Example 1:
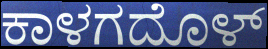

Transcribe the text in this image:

ಕಾಳಗದೊಳ್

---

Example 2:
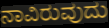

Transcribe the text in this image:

ನಾವಿರುವುದು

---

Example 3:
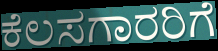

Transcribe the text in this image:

ಕೆಲಸಗಾರರಿಗೆ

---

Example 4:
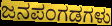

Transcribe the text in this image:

ಜನಪಂಗಡಗಳು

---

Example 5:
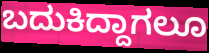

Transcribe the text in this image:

ಬದುಕಿದ್ದಾಗಲೂ